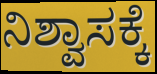
ನಿಶ್ವಾಸಕ್ಕೆ